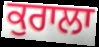
ਕੁਰਾਲਾ